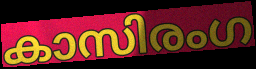
കാസിരംഗ